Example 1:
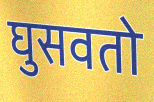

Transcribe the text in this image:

घुसवतो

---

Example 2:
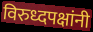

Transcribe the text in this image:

विरुध्दपक्षांनी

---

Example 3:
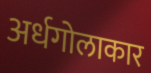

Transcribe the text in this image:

अर्धगोलाकार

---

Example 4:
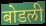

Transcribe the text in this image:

बोडली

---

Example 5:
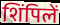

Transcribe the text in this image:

शिंपिलें